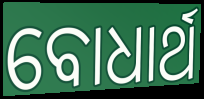
ବୋଧାର୍ଥ